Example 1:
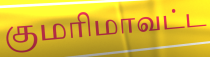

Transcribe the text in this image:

குமரிமாவட்ட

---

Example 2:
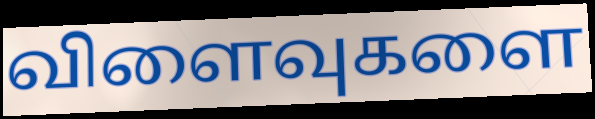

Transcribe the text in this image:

விளைவுகளை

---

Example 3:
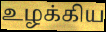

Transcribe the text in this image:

உழக்கிய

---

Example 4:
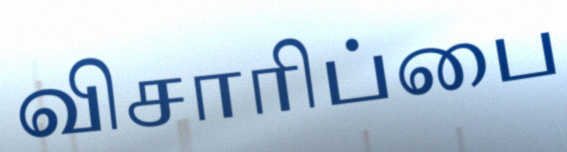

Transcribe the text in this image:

விசாரிப்பை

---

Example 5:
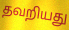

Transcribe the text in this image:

தவறியது